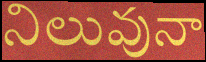
నిలువునా